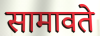
सामावते